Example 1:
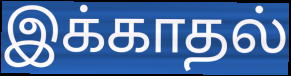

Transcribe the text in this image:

இக்காதல்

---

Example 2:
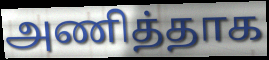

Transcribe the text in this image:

அணித்தாக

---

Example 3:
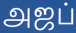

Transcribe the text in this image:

அஜப்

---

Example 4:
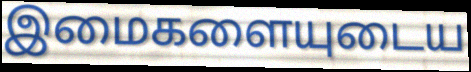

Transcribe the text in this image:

இமைகளையுடைய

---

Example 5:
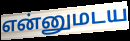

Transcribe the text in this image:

என்னுமடய